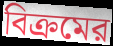
বিক্রমের